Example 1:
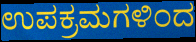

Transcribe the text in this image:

ಉಪಕ್ರಮಗಳಿಂದ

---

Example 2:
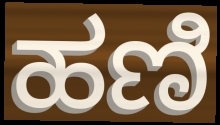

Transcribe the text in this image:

ಹಣಿ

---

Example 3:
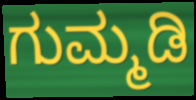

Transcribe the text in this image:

ಗುಮ್ಮಡಿ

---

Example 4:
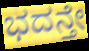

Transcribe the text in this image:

ಭದನ್ತೇ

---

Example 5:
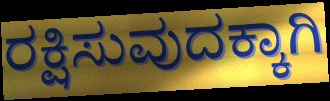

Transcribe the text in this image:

ರಕ್ಷಿಸುವುದಕ್ಕಾಗಿ